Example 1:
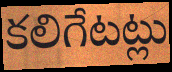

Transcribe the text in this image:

కలిగేటట్లు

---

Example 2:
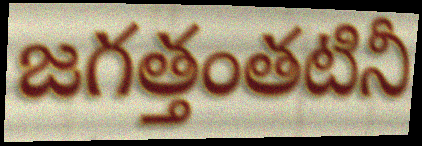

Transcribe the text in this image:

జగత్తంతటినీ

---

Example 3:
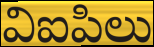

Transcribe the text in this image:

విఐపిలు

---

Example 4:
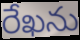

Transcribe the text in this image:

రేఖను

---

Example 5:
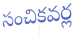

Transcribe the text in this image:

సంచికవర్ల